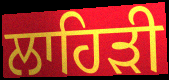
ਲਾਹਿੜੀ